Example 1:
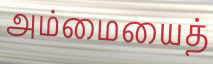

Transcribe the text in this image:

அம்மையைத்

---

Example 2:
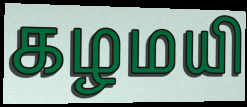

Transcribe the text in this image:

கழமயி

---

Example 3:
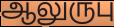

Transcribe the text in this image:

ஆலுருபு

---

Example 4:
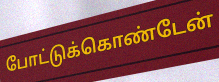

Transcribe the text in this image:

போட்டுக்கொண்டேன்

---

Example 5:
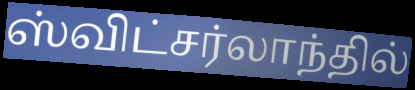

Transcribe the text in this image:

ஸ்விட்சர்லாந்தில்